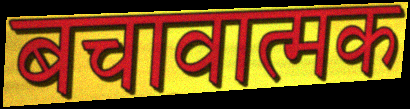
बचावात्मक